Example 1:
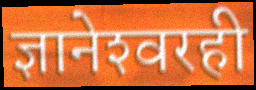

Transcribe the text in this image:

ज्ञानेश्वरही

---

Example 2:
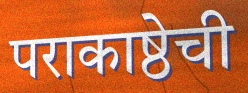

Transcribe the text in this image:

पराकाष्ठेची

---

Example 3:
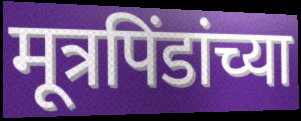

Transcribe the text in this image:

मूत्रपिंडांच्या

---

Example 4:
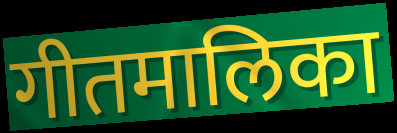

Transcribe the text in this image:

गीतमालिका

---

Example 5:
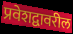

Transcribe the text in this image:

प्रवेशद्वावरील